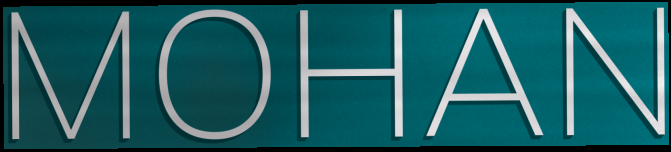
MOHAN